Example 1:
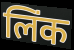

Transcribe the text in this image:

लिंक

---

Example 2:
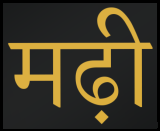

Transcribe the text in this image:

मढ़ी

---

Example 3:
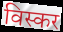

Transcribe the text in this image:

विस्कर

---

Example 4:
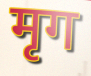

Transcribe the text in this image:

मृग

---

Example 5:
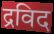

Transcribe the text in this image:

द्रविद